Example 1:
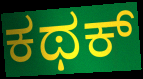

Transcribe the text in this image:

ಕಥಕ್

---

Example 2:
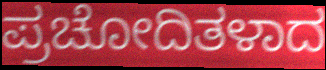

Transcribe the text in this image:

ಪ್ರಚೋದಿತಳಾದ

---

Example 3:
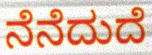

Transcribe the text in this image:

ನೆನೆದುದೆ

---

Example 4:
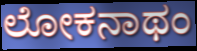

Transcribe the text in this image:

ಲೋಕನಾಥಂ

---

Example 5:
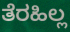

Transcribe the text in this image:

ತೆರಹಿಲ್ಲ